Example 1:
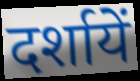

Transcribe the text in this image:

दर्शायें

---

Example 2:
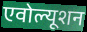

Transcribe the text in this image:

एवोल्यूशन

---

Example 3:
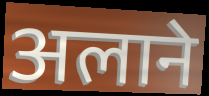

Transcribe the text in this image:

अलाने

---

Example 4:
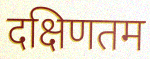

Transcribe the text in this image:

दक्षिणतम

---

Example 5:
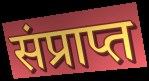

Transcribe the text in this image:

संप्राप्त